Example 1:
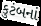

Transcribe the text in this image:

કુટંબનાં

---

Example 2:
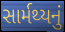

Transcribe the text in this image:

સાર્મથ્યનું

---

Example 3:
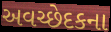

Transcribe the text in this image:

અવચ્છેદકના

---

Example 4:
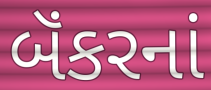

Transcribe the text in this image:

બૅંકરનાં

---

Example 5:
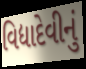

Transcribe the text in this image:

વિદ્યાદેવીનું